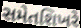
સમેતશિખરે